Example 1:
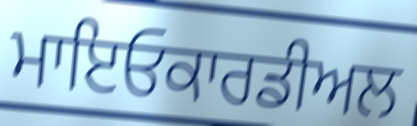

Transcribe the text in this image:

ਮਾਇਓਕਾਰਡੀਅਲ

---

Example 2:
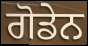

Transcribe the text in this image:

ਗੋਡੇਨ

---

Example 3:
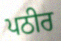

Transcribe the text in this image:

ਪਠੀਰ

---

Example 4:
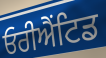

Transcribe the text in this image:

ਓਰੀਐਂਟਿਡ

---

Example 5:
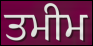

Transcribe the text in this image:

ਤਮੀਮ